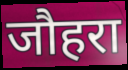
जौहरा